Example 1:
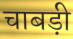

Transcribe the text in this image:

चाबड़ी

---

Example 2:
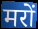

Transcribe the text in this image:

मरों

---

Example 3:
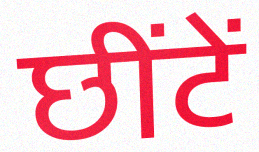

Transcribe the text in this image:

छींटें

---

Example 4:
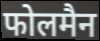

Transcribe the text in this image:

फोलमैन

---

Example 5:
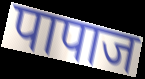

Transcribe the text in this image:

पापाज